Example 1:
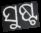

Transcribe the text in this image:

ସୁଷ୍ଟ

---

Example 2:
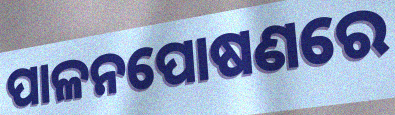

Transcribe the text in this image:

ପାଳନପୋଷଣରେ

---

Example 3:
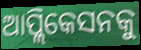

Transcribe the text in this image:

ଆପ୍ଲିକେସନକୁ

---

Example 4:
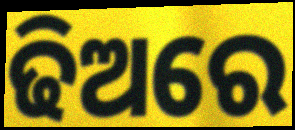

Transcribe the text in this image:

ଢିଅରେ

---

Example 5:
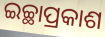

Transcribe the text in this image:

ଇଚ୍ଛାପ୍ରକାଶ